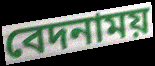
বেদনাময়